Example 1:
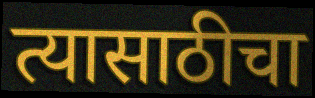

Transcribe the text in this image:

त्यासाठीचा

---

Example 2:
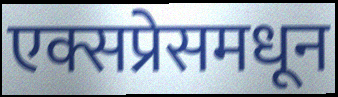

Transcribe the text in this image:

एक्सप्रेसमधून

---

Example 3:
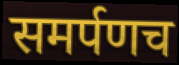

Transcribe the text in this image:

समर्पणच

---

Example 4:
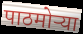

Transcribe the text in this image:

पाठमोऱ्या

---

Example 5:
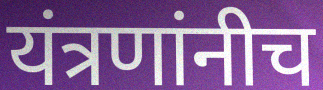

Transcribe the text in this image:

यंत्रणांनीच